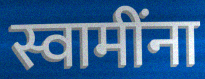
स्वामींना